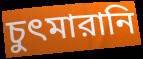
চুৎমারানি